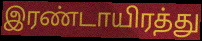
இரண்டாயிரத்து